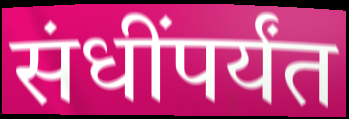
संधींपर्यंत